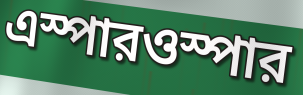
এস্পারওস্পার